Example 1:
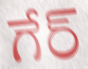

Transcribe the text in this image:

గేర్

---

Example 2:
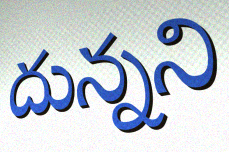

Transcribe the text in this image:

దున్నని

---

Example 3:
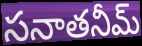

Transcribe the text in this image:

సనాతనీమ్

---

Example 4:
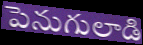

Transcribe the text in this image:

పెనుగులాడి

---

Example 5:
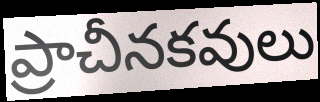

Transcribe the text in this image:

ప్రాచీనకవులు